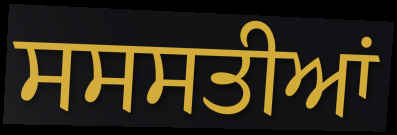
ਸਸਸਤੀਆਂ